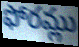
ఫోరమ్లు